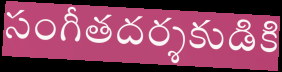
సంగీతదర్శకుడికి